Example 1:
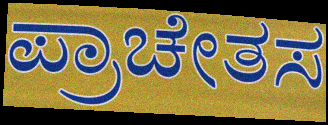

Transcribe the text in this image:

ಪ್ರಾಚೇತಸ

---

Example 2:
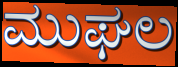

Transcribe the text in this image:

ಮುಘಲ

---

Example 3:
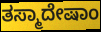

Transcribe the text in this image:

ತಸ್ಮಾದೇಷಾಂ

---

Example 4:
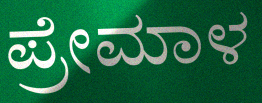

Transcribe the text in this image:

ಪ್ರೇಮಾಳ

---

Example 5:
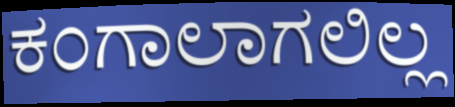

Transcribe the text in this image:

ಕಂಗಾಲಾಗಲಿಲ್ಲ